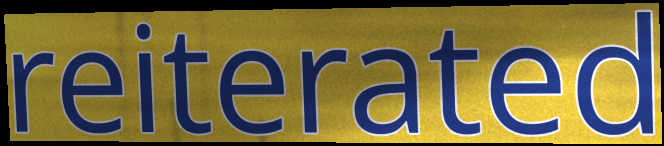
reiterated